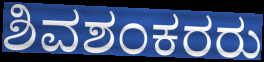
ಶಿವಶಂಕರರು